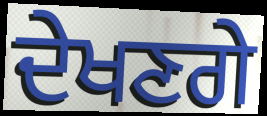
ਦੇਖਣਗੇ